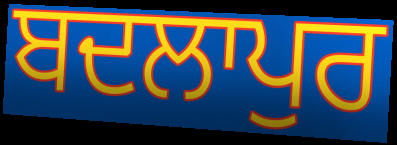
ਬਦਲਾਪੁਰ